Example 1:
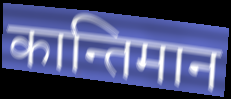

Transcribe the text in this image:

कान्तिमान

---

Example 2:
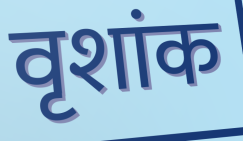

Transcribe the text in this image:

वृशांक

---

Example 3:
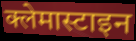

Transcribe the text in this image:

क्लेमास्टाइन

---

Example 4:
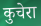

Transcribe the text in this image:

कुचेरा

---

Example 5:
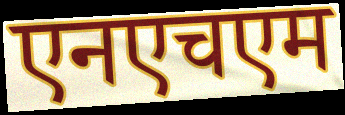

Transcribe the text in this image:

एनएचएम